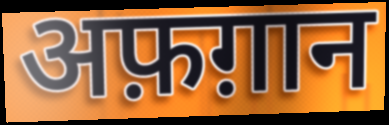
अफ़ग़ान